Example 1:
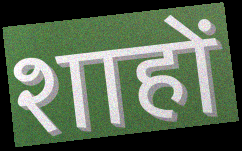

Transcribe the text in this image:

शाहों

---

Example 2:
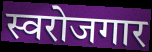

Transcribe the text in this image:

स्‍वरोजगार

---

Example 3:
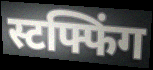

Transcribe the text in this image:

स्टफ्फिंग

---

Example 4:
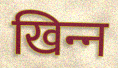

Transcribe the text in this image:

खिन्‍न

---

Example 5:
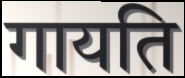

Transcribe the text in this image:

गायति